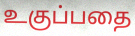
உகுப்பதை